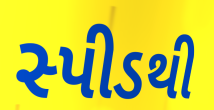
સ્પીડથી